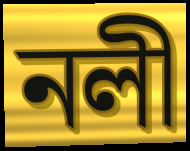
নলী